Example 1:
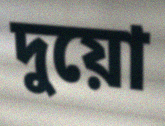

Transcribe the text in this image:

দুয়ো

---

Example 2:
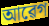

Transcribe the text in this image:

আৱেগ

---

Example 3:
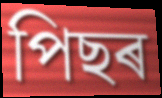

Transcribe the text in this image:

পিছৰ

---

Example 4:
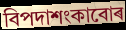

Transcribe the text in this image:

বিপদাশংকাবোৰ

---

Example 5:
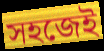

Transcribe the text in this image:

সহজেই